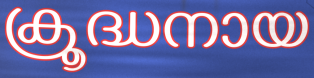
ക്രൂദ്ധനായ